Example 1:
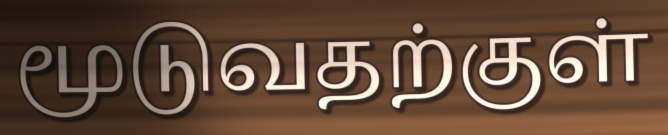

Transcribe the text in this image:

மூடுவதற்குள்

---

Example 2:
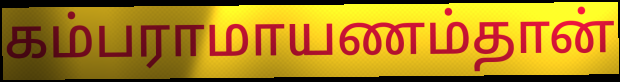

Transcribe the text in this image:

கம்பராமாயணம்தான்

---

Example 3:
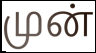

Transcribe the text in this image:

முன்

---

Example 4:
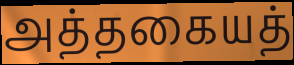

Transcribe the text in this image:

அத்தகையத்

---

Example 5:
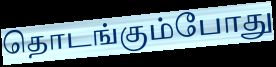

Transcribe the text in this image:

தொடங்கும்போது